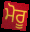
ਮੋਰੂ